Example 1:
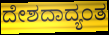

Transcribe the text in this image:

ದೇಶದಾದ್ಯಂತ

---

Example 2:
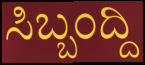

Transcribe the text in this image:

ಸಿಬ್ಬಂದ್ದಿ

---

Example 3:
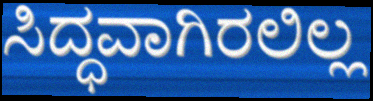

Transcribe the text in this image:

ಸಿದ್ಧವಾಗಿರಲಿಲ್ಲ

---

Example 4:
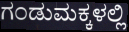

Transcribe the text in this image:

ಗಂಡುಮಕ್ಕಳಲ್ಲಿ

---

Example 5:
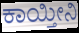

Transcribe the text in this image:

ಕಾಯ್ತೀನಿ